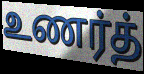
உணர்த்